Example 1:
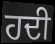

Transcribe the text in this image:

ਹਦੀ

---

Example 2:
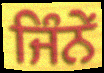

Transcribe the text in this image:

ਜਿੰਨੇਂ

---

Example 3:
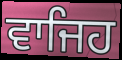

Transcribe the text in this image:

ਵਾਜਿਹ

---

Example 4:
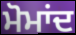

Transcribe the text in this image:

ਮੋਮਾਂਦ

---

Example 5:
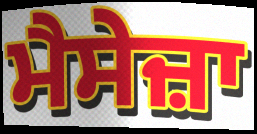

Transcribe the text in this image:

ਮੈਸੇਜ਼ਾ